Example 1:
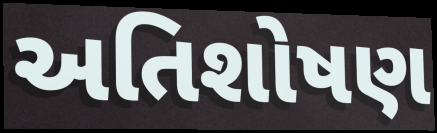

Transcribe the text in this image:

અતિશોષણ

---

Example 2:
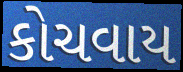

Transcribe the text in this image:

કોચવાય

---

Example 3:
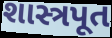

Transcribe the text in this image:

શાસ્ત્રપૂત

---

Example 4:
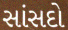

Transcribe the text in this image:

સાંસદો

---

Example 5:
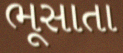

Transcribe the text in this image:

ભૂસાતા